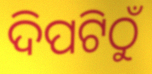
ଦିପଟିଠୁଁ